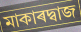
মাকাৰদ্বাজ